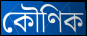
কৌণিক